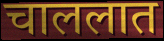
चाललात